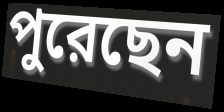
পুরেছেন